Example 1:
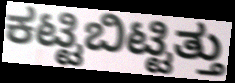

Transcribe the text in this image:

ಕಟ್ಟಿಬಿಟ್ಟಿತ್ತು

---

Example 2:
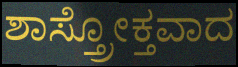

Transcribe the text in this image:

ಶಾಸ್ತ್ರೋಕ್ತವಾದ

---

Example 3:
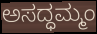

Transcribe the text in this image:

ಅಸದ್ಧಮ್ಮಂ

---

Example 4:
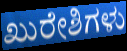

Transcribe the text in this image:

ಖುರೇಶಿಗಳು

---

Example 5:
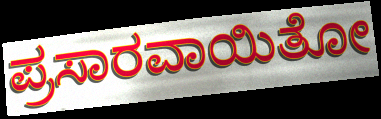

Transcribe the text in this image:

ಪ್ರಸಾರವಾಯಿತೋ